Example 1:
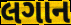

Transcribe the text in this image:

લગાન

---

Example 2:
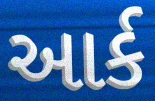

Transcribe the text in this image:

આર્ક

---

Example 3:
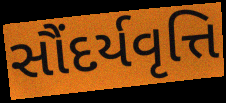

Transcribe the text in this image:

સૌંદર્યવૃત્તિ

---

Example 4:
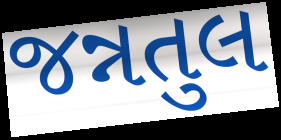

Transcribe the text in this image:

જન્નતુલ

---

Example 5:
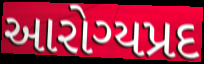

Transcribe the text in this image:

આરોગ્યપ્રદ